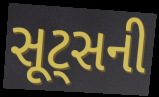
સૂટ્સની